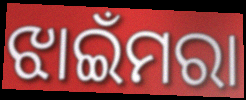
ଝାଇଁମରା